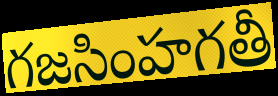
గజసింహగతీ